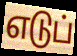
எடுப்